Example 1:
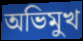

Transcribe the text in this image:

অভিমুখ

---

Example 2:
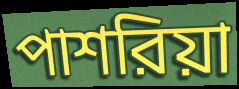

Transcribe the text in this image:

পাশরিয়া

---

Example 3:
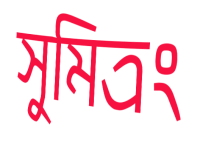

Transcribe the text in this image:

সুমিত্রং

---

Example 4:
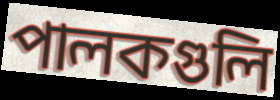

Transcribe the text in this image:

পালকগুলি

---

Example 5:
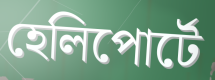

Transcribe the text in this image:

হেলিপোর্টে